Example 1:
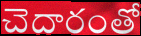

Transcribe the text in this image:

చెదారంతో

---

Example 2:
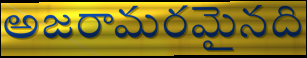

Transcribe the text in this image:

అజరామరమైనది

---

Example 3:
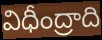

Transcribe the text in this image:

విధీంద్రాది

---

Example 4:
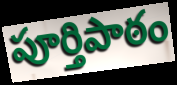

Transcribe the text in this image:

పూర్తిపాఠం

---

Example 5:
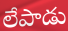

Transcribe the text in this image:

లేపాడు